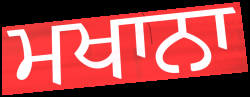
ਮਖਾਨਾ